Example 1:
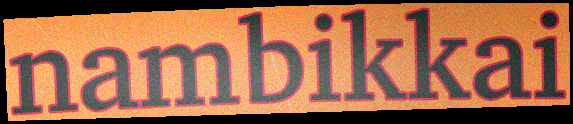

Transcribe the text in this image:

nambikkai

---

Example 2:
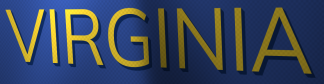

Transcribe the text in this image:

VIRGINIA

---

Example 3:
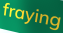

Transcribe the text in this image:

fraying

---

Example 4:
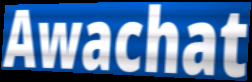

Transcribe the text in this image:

Awachat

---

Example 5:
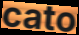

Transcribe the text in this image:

cato